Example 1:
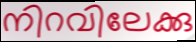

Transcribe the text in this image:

നിറവിലേക്കു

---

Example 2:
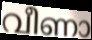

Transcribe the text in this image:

വീണാ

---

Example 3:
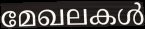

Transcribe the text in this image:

മേഖലകൾ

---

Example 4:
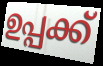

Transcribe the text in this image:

ഉപ്പക്ക്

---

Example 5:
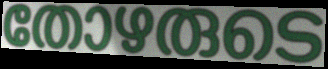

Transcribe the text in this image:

തോഴരുടെ